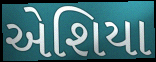
એશિયા